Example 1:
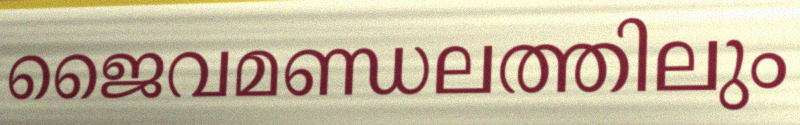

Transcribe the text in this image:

ജൈവമണ്ഡലത്തിലും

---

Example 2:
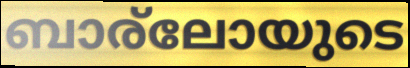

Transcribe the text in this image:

ബാര്ലോയുടെ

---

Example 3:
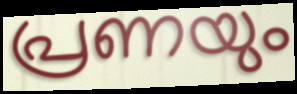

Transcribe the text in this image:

പ്രണയും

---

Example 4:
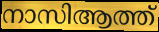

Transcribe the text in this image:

നാസിആത്ത്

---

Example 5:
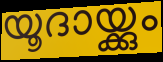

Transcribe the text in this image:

യൂദായ്ക്കും